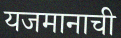
यजमानाची